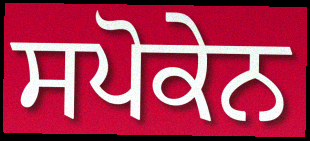
ਸਪੋਕੇਨ